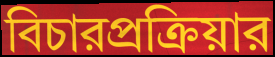
বিচারপ্রক্রিয়ার